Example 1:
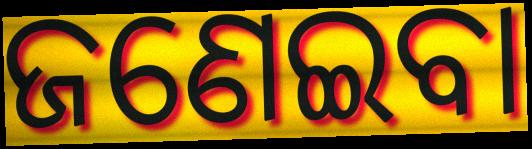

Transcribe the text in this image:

ଜଣେଇବା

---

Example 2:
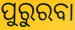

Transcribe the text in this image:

ପୁରୁରବା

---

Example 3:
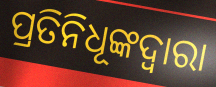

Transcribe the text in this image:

ପ୍ରତିନିଧୂଙ୍କଦ୍ଵାରା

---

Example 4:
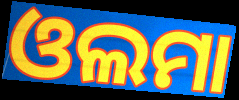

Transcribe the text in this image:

ଓଲମା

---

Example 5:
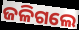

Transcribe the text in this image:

ଜଳିଗଲେ